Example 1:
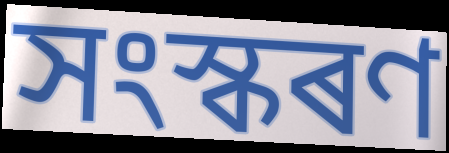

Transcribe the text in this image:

সংস্কৰণ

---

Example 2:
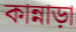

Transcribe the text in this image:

কান্নাড়া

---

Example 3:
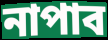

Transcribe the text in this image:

নাপাব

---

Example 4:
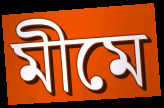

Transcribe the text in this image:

মীমে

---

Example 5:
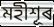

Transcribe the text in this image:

মহীশূৰ